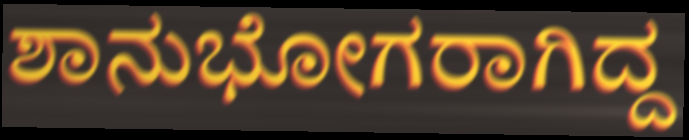
ಶಾನುಭೋಗರಾಗಿದ್ದ